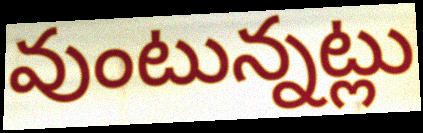
వుంటున్నట్లు